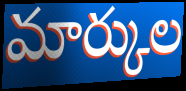
మార్కుల